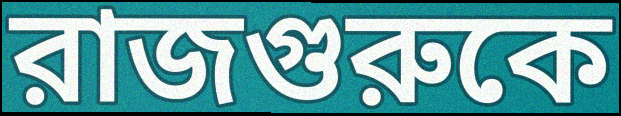
রাজগুরুকে